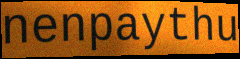
nenpaythu